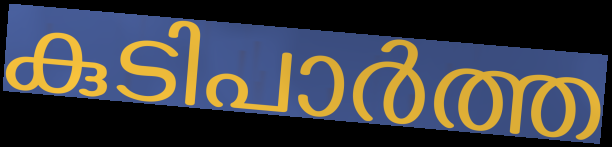
കുടിപാർത്ത